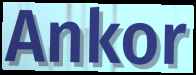
Ankor